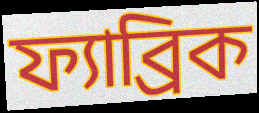
ফ্যাব্রিক